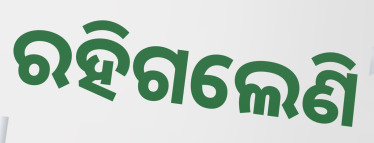
ରହିଗଲେଣି